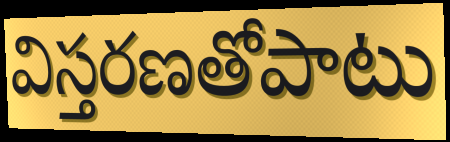
విస్తరణతోపాటు